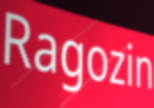
Ragozin